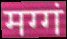
मग्गं